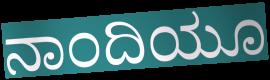
ನಾಂದಿಯೂ